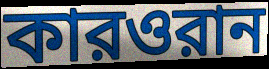
কারওরান